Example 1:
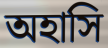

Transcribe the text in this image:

অহাসি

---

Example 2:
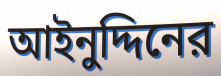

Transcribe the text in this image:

আইনুদ্দিনের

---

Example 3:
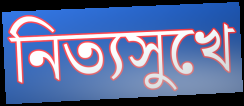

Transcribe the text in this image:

নিত্যসুখে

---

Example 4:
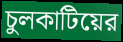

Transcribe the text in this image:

চুলকাটিয়ের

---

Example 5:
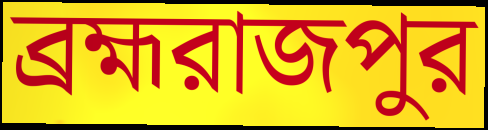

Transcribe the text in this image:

ব্রহ্মরাজপুর